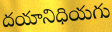
దయానిధియగు